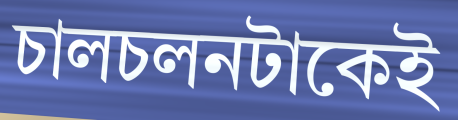
চালচলনটাকেই